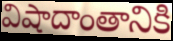
విషాదాంతానికి